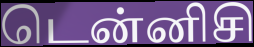
டென்னிசி